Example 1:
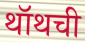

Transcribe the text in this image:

थॉथची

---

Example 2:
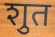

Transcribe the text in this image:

श्रुत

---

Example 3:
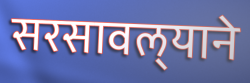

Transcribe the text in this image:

सरसावल्याने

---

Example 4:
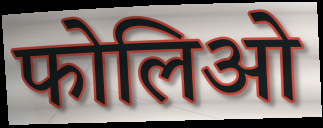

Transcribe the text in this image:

फोलिओ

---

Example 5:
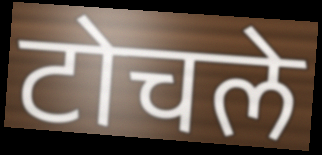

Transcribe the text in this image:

टोचले